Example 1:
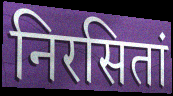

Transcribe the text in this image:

निरसितां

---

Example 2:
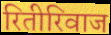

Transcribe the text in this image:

रितीरिवाज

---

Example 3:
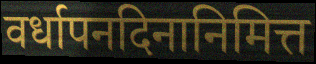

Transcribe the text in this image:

वर्धापनदिनानिमित्त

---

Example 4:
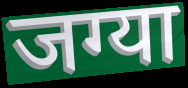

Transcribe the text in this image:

जग्या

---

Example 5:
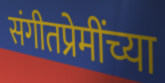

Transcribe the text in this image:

संगीतप्रेमींच्या